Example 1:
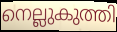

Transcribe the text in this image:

നെല്ലുകുത്തി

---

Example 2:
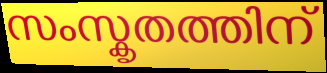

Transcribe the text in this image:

സംസ്കൃതത്തിന്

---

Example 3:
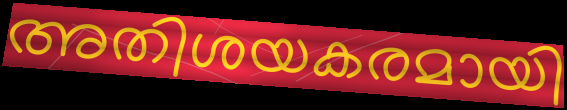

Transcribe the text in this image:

അതിശയകരമായി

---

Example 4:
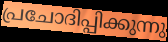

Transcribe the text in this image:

പ്രചോദിപ്പിക്കുന്നു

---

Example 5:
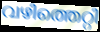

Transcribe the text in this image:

വഴിത്തെറ്റി